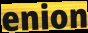
enion